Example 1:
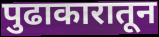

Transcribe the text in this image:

पुढाकारातून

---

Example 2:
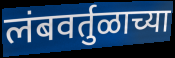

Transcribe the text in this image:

लंबवर्तुळाच्या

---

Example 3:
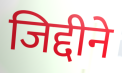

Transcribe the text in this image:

जिद्दीने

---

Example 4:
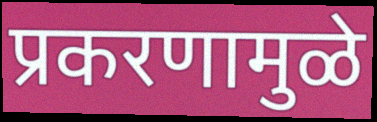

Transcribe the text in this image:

प्रकरणामुळे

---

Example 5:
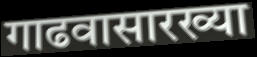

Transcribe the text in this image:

गाढवासारख्या